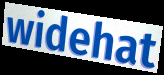
widehat